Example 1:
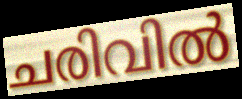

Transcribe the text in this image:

ചരിവിൽ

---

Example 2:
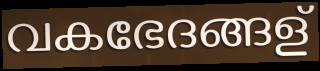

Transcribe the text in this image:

വകഭേദങ്ങള്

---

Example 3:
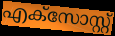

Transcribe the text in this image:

എക്സോസ്റ്റ്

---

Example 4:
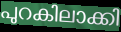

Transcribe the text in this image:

പുറകിലാക്കി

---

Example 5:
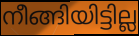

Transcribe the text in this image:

നീങ്ങിയിട്ടില്ല